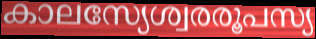
കാലസ്യേശ്വരരൂപസ്യ